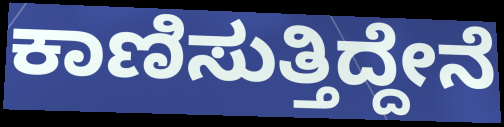
ಕಾಣಿಸುತ್ತಿದ್ದೇನೆ